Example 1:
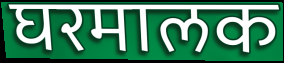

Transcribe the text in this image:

घरमालक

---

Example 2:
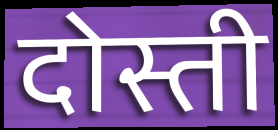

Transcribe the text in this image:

दोस्ती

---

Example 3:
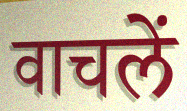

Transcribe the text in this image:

वाचलें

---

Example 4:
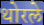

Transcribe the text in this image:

थोरले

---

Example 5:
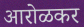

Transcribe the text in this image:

आरोळकर